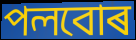
পলবোৰ